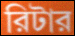
রিটার